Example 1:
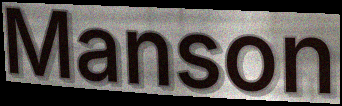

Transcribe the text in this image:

Manson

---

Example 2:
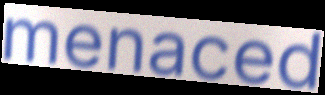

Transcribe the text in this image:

menaced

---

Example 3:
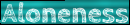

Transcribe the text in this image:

Aloneness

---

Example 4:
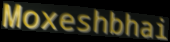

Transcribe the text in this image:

Moxeshbhai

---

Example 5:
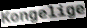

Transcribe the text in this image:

Kongelige